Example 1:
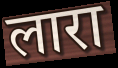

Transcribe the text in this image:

लारा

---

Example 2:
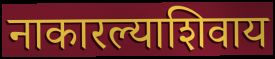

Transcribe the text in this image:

नाकारल्याशिवाय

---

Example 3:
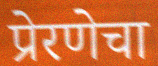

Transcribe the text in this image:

प्रेरणेचा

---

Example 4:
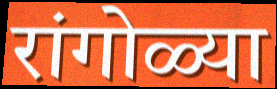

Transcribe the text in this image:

रांगोळ्या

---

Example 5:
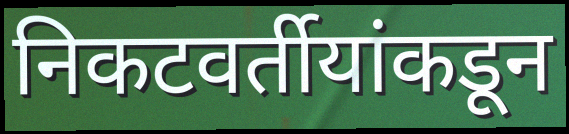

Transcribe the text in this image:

निकटवर्तीयांकडून